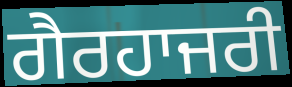
ਗੈਰਹਾਜਰੀ